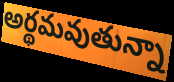
అర్థమవుతున్నా